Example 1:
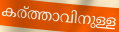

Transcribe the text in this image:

കര്ത്താവിനുള്ള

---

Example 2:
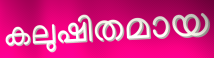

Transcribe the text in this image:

കലുഷിതമായ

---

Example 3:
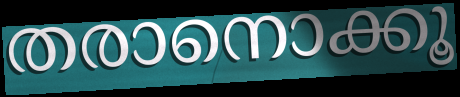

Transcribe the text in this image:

തരാനൊക്കൂ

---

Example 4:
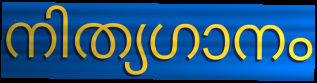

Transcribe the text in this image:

നിത്യഗാനം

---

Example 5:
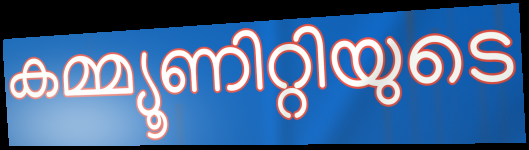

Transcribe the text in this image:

കമ്മ്യൂണിറ്റിയുടെ